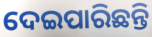
ଦେଇପାରିଛନ୍ତି